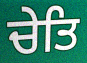
ਚੇਤਿ